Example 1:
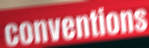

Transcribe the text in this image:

conventions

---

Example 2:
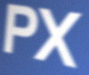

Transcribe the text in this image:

PX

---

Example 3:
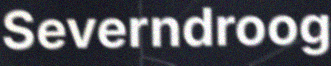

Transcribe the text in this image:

Severndroog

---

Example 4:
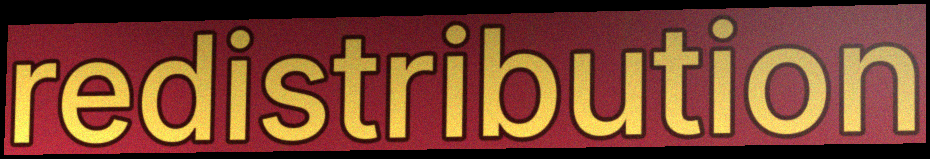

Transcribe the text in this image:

redistribution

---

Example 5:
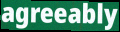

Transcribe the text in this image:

agreeably